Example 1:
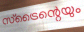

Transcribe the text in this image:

സ്ട്രൈന്റെയും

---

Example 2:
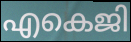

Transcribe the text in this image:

എകെജി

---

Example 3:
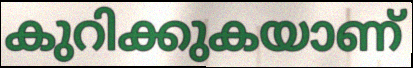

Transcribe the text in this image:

കുറിക്കുകയാണ്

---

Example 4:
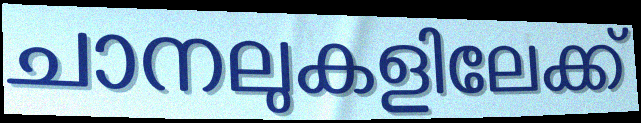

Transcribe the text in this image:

ചാനലുകളിലേക്ക്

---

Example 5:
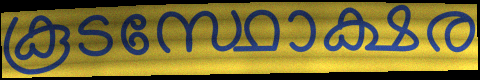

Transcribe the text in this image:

കൂടസ്ഥോക്ഷര